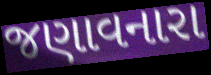
જણાવનારા